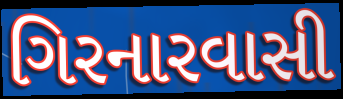
ગિરનારવાસી